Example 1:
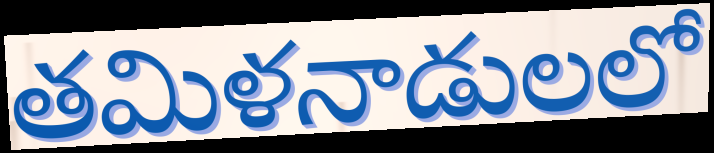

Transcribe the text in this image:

తమిళనాడులలో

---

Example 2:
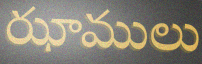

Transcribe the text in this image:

ఝాములు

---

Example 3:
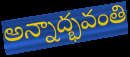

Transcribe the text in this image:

అన్నాద్భవంతి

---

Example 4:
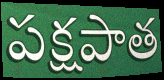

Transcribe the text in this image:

పక్షపాత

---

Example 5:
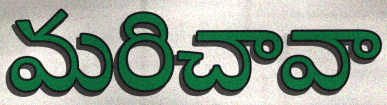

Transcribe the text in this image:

మరిచావా